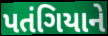
પતંગિયાને